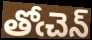
తోఁచెన్